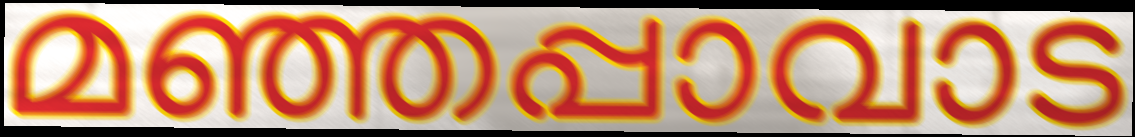
മഞ്ഞപ്പാവാട